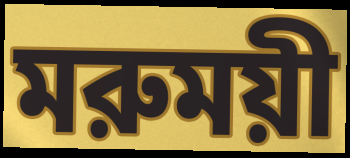
মরুময়ী